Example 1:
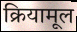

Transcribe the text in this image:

क्रियामूल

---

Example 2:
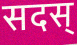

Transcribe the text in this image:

सदस्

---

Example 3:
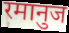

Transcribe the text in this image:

रमानुज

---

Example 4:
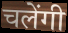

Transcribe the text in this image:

चलेंगी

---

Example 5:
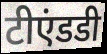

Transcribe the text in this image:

टीएंडडी